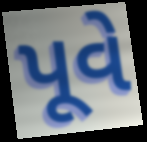
પૂવે